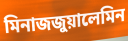
মিনাজজুয়ালেমিন